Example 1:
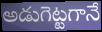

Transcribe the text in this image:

అడుగెట్టగానే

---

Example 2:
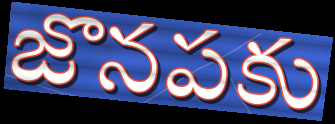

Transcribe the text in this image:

జొనపకు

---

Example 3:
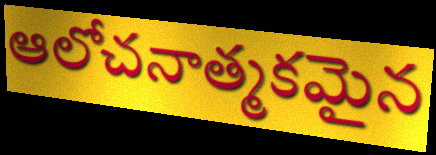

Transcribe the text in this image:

ఆలోచనాత్మకమైన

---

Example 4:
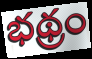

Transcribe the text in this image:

భథ్రం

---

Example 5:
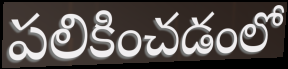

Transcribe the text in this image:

పలికించడంలో